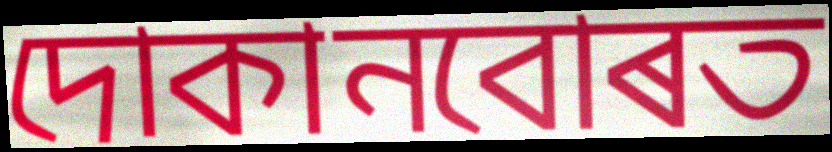
দোকানবোৰত